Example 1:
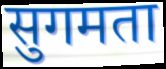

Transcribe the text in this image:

सुगमता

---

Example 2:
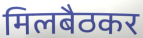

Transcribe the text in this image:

मिलबैठकर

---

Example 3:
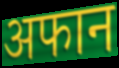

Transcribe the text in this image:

अफान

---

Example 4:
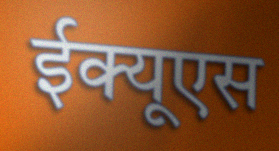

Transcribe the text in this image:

ईक्यूएस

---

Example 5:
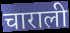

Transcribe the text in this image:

चाराली